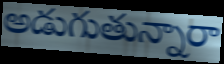
అడుగుతున్నారా